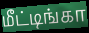
மீட்டிங்கா